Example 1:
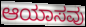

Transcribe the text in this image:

ಆಯಾಸವು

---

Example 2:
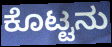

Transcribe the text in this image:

ಕೊಟ್ಟನು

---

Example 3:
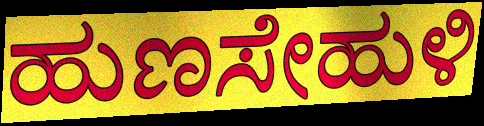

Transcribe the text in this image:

ಹುಣಸೇಹುಳಿ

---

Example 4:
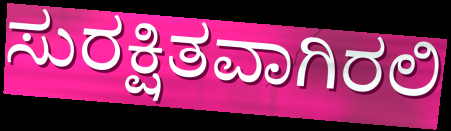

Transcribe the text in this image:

ಸುರಕ್ಷಿತವಾಗಿರಲಿ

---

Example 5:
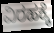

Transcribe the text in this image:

ವಿರಹಕ್ಕೆ